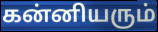
கன்னியரும்